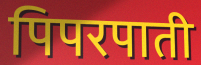
पिपरपाती